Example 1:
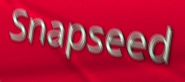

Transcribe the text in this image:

Snapseed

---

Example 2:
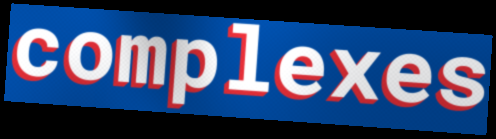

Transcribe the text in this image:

complexes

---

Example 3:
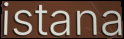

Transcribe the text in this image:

istana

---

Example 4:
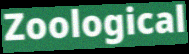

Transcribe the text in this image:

Zoological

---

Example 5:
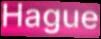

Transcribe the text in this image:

Hague